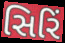
સિરિં